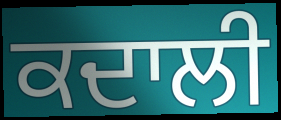
ਕਦਾਲੀ